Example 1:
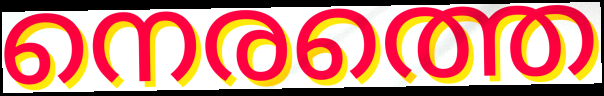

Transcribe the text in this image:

നെരത്തെ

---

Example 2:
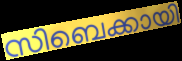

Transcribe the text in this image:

സിബെക്കായി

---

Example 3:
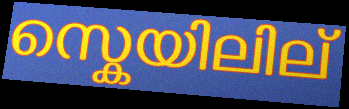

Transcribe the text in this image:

സ്കെയിലില്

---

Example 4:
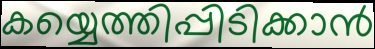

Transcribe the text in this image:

കയ്യെത്തിപ്പിടിക്കാൻ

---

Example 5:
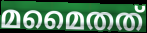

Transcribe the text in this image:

മമൈതത്